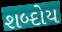
શબ્દોય